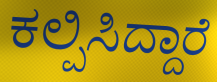
ಕಲ್ಪಿಸಿದ್ದಾರೆ